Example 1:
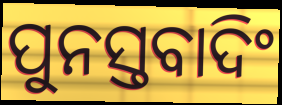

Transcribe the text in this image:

ପୁନସ୍ତବାଦିଂ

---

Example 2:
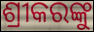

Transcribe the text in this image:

ଶ୍ରୀକରଙ୍କୁ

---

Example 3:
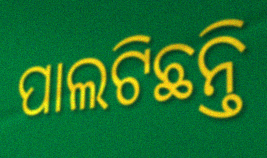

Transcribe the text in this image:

ପାଲଟିଛନ୍ତି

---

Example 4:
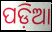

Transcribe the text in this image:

ପଡ଼ିଆ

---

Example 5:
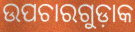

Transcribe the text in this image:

ଉପଚାରଗୁଡ଼ାକ